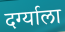
दर्ग्याला